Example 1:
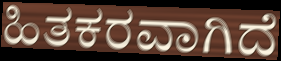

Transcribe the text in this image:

ಹಿತಕರವಾಗಿದೆ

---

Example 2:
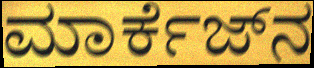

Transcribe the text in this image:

ಮಾರ್ಕೆಜ್‌ನ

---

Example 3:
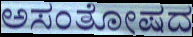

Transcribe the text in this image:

ಅಸಂತೋಷದ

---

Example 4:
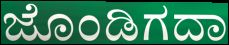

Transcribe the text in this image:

ಜೊಂಡಿಗದಾ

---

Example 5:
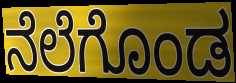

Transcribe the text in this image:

ನೆಲೆಗೊಂಡ